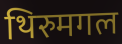
थिरुमगल